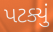
પટક્યું